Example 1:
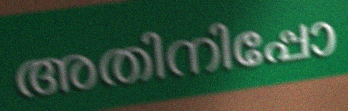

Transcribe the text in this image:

അതിനിപ്പോ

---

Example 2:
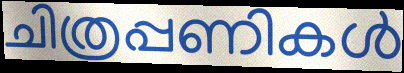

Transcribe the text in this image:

ചിത്രപ്പണികൾ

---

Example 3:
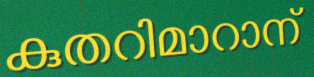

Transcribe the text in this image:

കുതറിമാറാന്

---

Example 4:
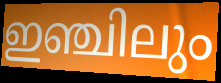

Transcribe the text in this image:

ഇഞ്ചിലും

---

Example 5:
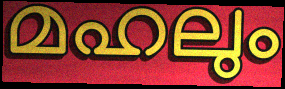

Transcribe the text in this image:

മഹലും